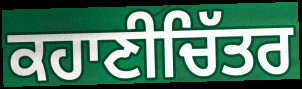
ਕਹਾਣੀਚਿੱਤਰ